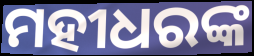
ମହୀଧରଙ୍କ